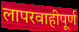
लापरवाहीपूर्ण